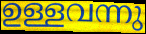
ഉള്ളവന്നു